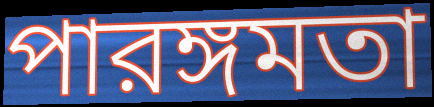
পারঙ্গমতা